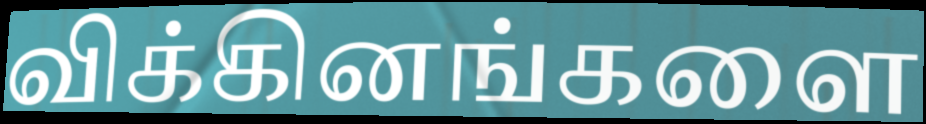
விக்கினங்களை